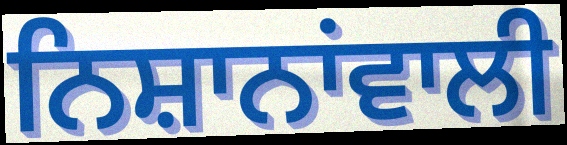
ਨਿਸ਼ਾਨਾਂਵਾਲੀ